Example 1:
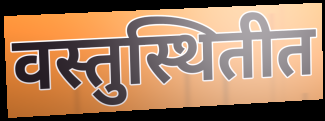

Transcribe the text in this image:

वस्तुस्थितीत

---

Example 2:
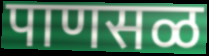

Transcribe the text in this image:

पाणसळ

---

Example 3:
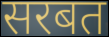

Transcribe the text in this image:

सरबत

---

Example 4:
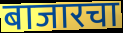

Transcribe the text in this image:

बाजारचा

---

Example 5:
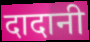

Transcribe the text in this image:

दादानी